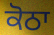
ਕੋਠਾ